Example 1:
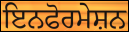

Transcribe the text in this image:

ਇਨਫੋਰਮੇਸ਼ਨ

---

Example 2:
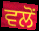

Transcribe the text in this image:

ਵਲੋੰ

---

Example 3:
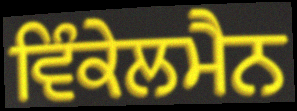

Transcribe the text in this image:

ਵਿੰਕੇਲਮੈਨ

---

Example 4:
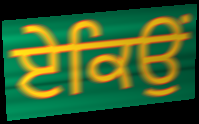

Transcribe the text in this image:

ਏਕਿਉਂ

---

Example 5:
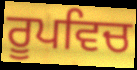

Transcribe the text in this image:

ਰੂਪਵਿਚ